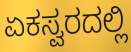
ಏಕಸ್ವರದಲ್ಲಿ